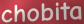
chobita